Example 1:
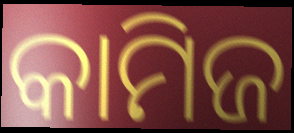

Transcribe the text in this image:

କାମିଜ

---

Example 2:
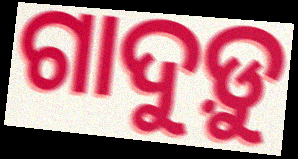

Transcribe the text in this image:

ଗାଦୁଡ଼ୁ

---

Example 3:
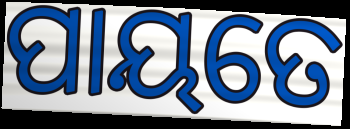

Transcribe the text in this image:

ପାୟତେ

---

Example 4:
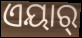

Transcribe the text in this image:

ଏୟାର୍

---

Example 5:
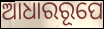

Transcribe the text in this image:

ଆଧାରରୂପେ